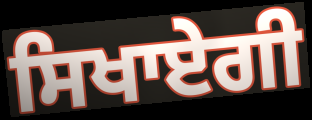
ਸਿਖਾਏਗੀ